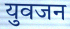
युवजन